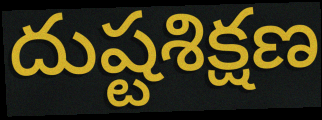
దుష్టశిక్షణ